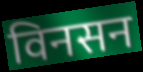
विनसन